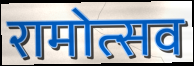
रामोत्सव